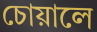
চোয়ালে